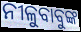
ନୀଳୁବାବୁଙ୍କ